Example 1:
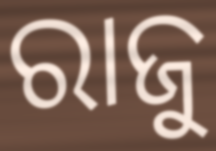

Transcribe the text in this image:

ରାଜୁ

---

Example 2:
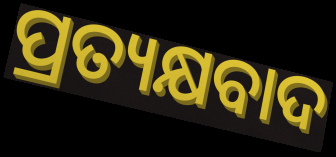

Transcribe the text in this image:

ପ୍ରତ୍ୟକ୍ଷବାଦ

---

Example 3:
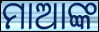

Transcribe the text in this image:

ମାଆଙ୍କ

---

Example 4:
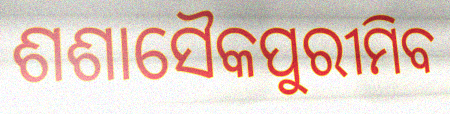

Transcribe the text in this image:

ଶଶାସୈକପୁରୀମିବ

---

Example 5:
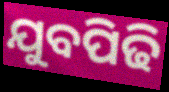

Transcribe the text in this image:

ଯୁବପିଢି